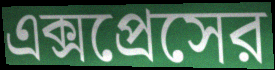
এক্সপ্রেসের